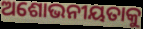
ଅଶୋଭନୀୟତାକୁ